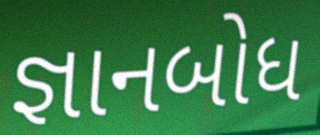
જ્ઞાનબોધ